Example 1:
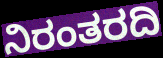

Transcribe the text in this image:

ನಿರಂತರದಿ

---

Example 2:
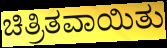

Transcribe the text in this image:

ಚಿತ್ರಿತವಾಯಿತು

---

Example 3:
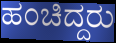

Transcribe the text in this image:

ಹಂಚಿದ್ದರು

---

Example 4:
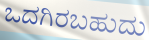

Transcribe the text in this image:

ಒದಗಿರಬಹುದು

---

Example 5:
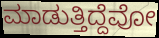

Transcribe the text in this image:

ಮಾಡುತ್ತಿದ್ದೆವೋ